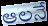
ఆలనే